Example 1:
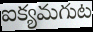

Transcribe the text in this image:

ఐక్యమగుట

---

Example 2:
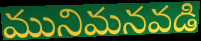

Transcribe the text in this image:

మునిమనవడి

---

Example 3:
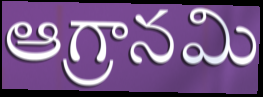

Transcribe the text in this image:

ఆగ్రానమి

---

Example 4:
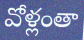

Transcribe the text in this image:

వోళ్లంతా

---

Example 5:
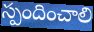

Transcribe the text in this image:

స్పందించాలి